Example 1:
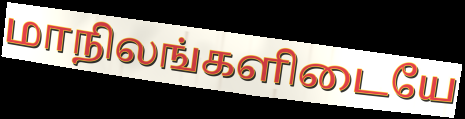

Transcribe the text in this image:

மாநிலங்களிடையே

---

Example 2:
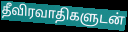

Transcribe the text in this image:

தீவிரவாதிகளுடன்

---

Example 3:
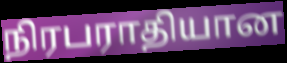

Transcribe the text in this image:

நிரபராதியான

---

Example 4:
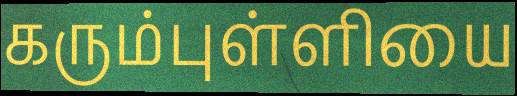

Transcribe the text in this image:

கரும்புள்ளியை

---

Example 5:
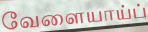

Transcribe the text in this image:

வேளையாய்ப்